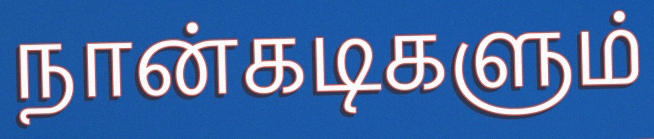
நான்கடிகளும்